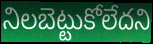
నిలబెట్టుకోలేదని